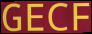
GECF